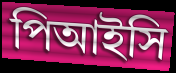
পিআইসি